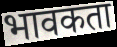
भावकता